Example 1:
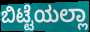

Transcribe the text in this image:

ಬಿಟ್ಟೆಯಲ್ಲಾ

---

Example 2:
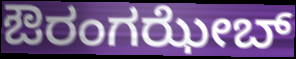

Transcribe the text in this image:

ಔರಂಗಝೇಬ್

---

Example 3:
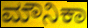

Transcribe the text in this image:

ಮೌನಿಕಾ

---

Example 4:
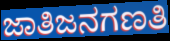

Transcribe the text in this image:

ಜಾತಿಜನಗಣತಿ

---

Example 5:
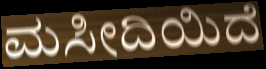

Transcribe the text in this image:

ಮಸೀದಿಯಿದೆ